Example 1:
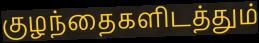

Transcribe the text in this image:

குழந்தைகளிடத்தும்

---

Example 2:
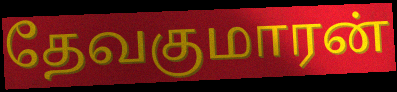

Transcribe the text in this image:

தேவகுமாரன்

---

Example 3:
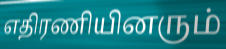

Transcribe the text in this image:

எதிரணியினரும்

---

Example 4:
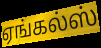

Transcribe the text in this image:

ஏங்கல்ஸ்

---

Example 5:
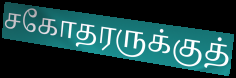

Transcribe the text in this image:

சகோதரருக்குத்